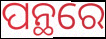
ପନ୍ଥରେ